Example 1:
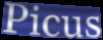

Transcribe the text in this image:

Picus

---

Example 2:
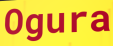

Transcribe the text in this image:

Ogura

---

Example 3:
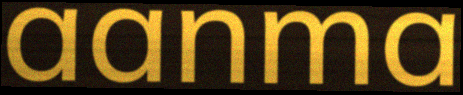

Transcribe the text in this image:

aanma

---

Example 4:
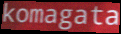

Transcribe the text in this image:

komagata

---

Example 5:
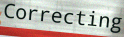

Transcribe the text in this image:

Correcting